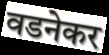
वडनेकर